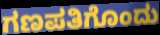
ಗಣಪತಿಗೊಂದು